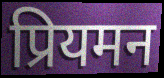
प्रियमन